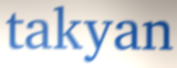
takyan